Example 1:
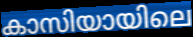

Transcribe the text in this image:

കാസിയായിലെ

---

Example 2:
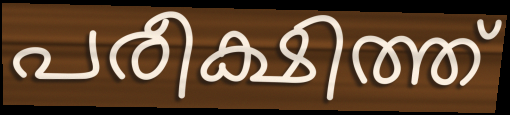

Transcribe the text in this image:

പരീക്ഷിത്ത്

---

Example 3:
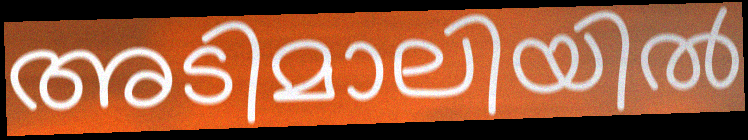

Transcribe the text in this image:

അടിമാലിയിൽ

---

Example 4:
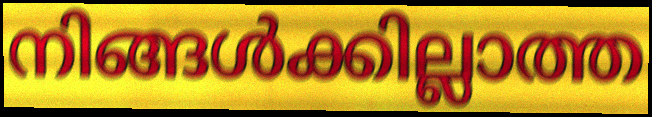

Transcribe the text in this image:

നിങ്ങൾക്കില്ലാത്ത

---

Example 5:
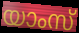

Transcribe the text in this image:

യാംസ്